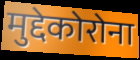
मुद्देकोरोना